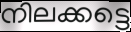
നിലക്കട്ടെ